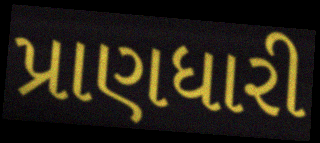
પ્રાણધારી